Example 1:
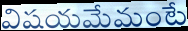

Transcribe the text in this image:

విషయమేమంటే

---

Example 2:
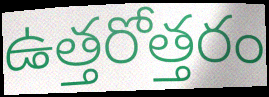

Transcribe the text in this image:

ఉత్తరోత్తరం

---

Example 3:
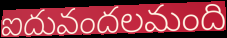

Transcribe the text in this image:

ఐదువందలమంది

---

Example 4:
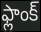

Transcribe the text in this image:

ఫ్లాంక్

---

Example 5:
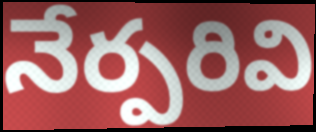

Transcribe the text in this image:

నేర్పరివి